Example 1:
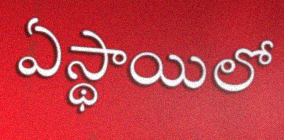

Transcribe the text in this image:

ఏస్థాయిలో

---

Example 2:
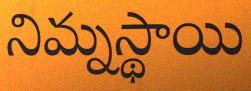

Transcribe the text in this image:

నిమ్నస్థాయి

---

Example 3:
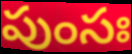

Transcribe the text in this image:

పుంసః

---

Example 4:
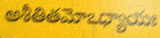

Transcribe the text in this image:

అశీతితమోఽధ్యాయః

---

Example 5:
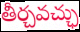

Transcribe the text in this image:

తీర్చవచ్ఛు